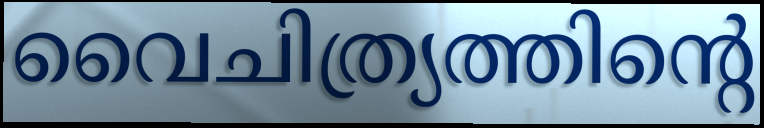
വൈചിത്ര്യത്തിന്റെ